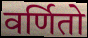
वर्णितो